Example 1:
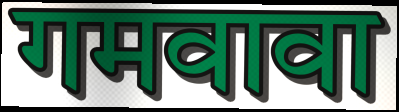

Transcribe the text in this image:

गमवावा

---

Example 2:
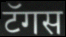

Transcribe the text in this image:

टॅगस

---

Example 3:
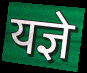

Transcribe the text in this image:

यज्ञे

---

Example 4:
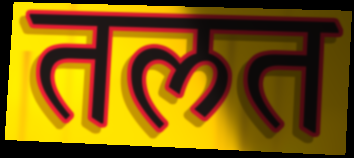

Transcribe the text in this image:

तलत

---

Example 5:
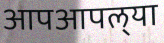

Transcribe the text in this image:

आपआपल्या